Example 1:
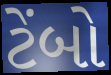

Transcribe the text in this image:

ટેંબો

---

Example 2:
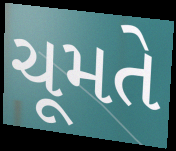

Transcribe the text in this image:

ચૂમતે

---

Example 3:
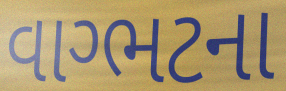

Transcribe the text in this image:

વાગ્ભટના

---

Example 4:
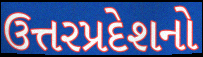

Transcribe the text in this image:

ઉત્તરપ્રદેશનો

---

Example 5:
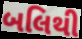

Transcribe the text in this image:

બલિથી